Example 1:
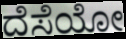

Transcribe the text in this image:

ದೆಸೆಯೋ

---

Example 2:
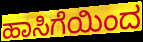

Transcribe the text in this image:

ಹಾಸಿಗೆಯಿಂದ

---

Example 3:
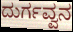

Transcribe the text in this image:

ದುರ್ಗವ್ವನ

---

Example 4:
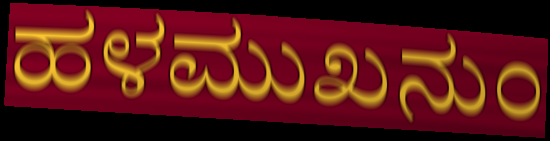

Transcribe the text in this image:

ಹಳಮುಖನುಂ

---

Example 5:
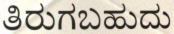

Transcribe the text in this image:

ತಿರುಗಬಹುದು